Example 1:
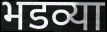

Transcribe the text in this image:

भडव्या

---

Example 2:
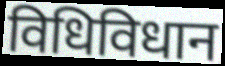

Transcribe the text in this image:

विधिविधान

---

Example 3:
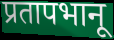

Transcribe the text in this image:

प्रतापभानू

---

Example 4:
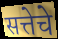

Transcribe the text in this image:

सत्तेचे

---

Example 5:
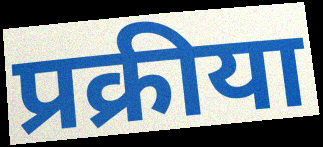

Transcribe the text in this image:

प्रक्रीया